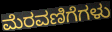
ಮೆರವಣಿಗೆಗಳು